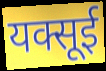
यक्सूई